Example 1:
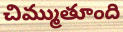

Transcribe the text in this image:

చిమ్ముతూంది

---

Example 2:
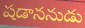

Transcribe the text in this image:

షడాననుడు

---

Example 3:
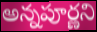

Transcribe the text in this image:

అన్నపూర్ణని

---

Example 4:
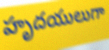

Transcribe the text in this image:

హృదయులుగా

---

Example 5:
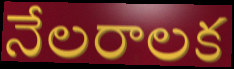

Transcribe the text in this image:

నేలరాలక